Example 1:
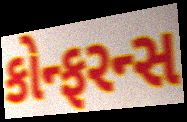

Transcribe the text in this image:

કોન્ફરન્સ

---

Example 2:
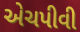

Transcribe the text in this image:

એચપીવી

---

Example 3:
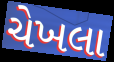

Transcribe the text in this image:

ચેખલા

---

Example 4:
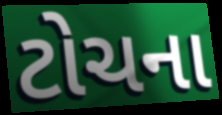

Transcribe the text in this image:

ટોચના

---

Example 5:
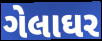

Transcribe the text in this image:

ગેલાઘર